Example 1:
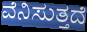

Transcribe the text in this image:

ವೆನಿಸುತ್ತದೆ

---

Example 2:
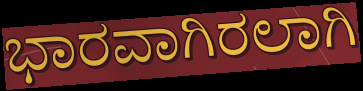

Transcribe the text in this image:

ಭಾರವಾಗಿರಲಾಗಿ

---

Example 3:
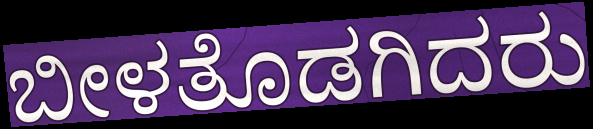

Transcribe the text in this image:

ಬೀಳತೊಡಗಿದರು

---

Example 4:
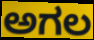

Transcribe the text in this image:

ಅಗಲ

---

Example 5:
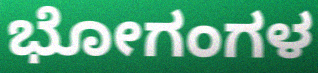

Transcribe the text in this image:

ಭೋಗಂಗಳ